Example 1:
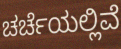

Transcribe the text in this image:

ಚರ್ಚೆಯಲ್ಲಿವೆ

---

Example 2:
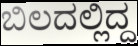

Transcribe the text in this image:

ಬಿಲದಲ್ಲಿದ್ದ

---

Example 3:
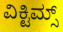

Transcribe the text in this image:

ವಿಕ್ಟಿಮ್ಸ್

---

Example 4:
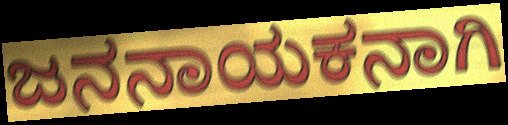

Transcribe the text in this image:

ಜನನಾಯಕನಾಗಿ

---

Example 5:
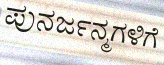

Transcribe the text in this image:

ಪುನರ್ಜನ್ಮಗಳಿಗೆ